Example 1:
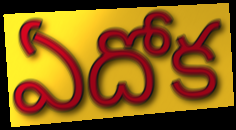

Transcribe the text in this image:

ఏదోక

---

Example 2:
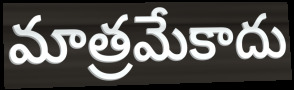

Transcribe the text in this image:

మాత్రమేకాదు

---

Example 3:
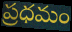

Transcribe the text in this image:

ప్రధమం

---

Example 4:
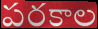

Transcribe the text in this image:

పరకాల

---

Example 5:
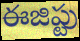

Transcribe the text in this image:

ఈజిప్టు